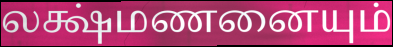
லக்ஷ்மணனையும்